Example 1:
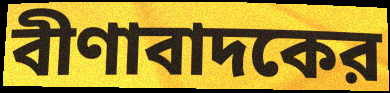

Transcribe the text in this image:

বীণাবাদকের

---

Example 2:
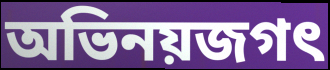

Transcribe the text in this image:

অভিনয়জগৎ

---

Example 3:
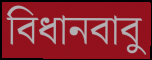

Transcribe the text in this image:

বিধানবাবু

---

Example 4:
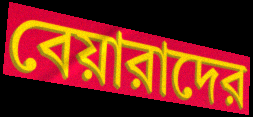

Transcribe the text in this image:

বেয়ারাদের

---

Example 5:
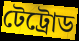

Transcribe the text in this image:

টেট্রোড